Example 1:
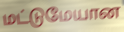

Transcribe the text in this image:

மட்டுமேயான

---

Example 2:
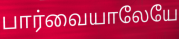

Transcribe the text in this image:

பார்வையாலேயே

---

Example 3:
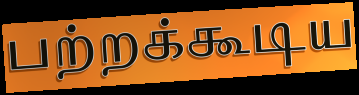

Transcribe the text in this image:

பற்றக்கூடிய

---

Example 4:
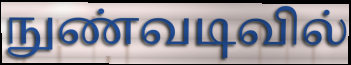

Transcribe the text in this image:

நுண்வடிவில்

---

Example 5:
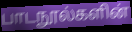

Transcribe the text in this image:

பாடநூல்களின்